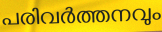
പരിവർത്തനവും